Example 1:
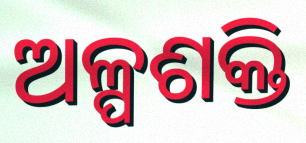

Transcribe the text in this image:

ଅଳ୍ପଶକ୍ତି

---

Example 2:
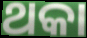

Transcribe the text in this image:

ଥକା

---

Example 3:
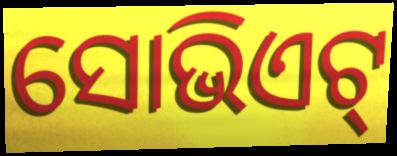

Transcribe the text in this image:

ସୋଭିଏଟ୍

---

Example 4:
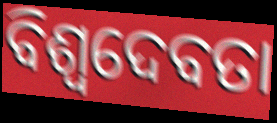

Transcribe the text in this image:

ବିଶ୍ୱଦେବତା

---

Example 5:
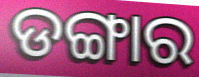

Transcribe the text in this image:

ଡଙ୍ଗାର